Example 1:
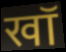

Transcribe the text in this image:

खॉ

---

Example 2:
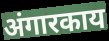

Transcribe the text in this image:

अंगारकाय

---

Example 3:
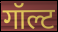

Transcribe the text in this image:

गॉल्ट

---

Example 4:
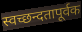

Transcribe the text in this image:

स्वच्छन्दतापूर्वक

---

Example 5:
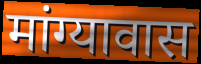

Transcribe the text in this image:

मांग्यावास